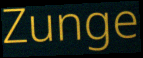
Zunge